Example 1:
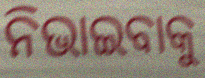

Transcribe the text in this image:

ନିଭାଇବାକୁ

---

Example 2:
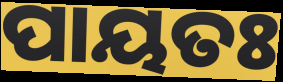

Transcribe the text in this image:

ପାୟତଃ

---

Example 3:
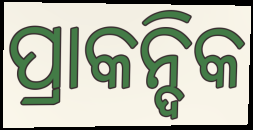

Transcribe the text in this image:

ପ୍ରାକନ୍ଦିକ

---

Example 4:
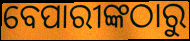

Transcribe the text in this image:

ବେପାରୀଙ୍କଠାରୁ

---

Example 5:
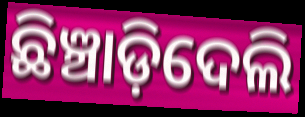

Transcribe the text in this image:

ଛିଞ୍ଚାଡ଼ିଦେଲି